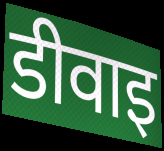
डीवाइ